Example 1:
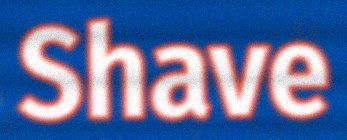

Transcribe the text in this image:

Shave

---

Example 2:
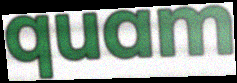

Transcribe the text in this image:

quam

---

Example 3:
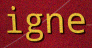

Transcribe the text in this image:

igne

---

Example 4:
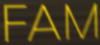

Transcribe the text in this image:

FAM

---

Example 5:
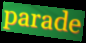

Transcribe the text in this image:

parade